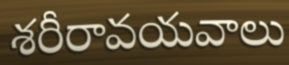
శరీరావయవాలు